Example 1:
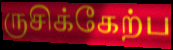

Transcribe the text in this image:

ருசிக்கேற்ப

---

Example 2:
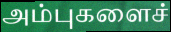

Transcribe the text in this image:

அம்புகளைச்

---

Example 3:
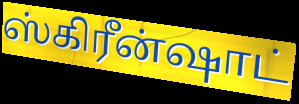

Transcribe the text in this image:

ஸ்கிரீன்ஷாட்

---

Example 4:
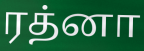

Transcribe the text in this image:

ரத்னா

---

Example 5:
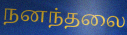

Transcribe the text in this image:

நனந்தலை